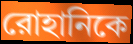
রোহানিকে